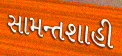
સામન્તશાહી